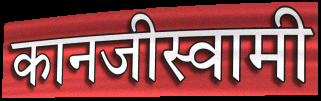
कानजीस्वामी